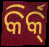
କିର୍କ୍